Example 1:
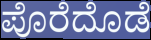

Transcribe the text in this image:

ಪೊರೆದೊಡೆ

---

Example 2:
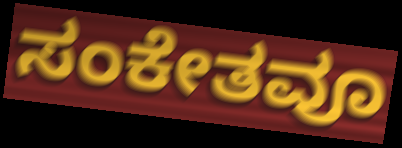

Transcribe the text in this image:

ಸಂಕೇತವೂ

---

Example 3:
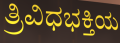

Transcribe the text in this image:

ತ್ರಿವಿಧಭಕ್ತಿಯ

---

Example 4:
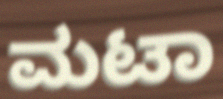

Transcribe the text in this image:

ಮಟಾ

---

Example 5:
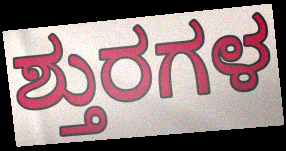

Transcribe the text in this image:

ಶ್ತುರಗಳ